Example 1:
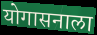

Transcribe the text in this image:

योगासनाला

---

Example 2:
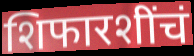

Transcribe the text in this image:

शिफारशींचं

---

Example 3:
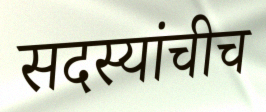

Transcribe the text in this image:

सदस्यांचीच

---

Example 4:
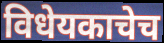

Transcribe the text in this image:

विधेयकाचेच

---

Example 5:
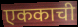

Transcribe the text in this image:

एककाची